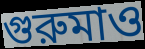
গুরুমাও